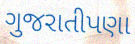
ગુજરાતીપણા